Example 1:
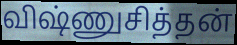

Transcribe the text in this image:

விஷ்ணுசித்தன்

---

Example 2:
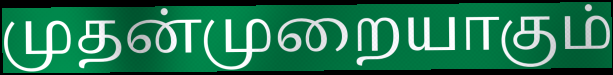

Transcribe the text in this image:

முதன்முறையாகும்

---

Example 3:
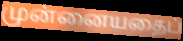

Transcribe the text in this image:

முன்னையதைப்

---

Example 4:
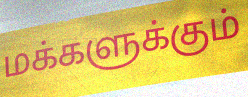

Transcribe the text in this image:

மக்களுக்கும்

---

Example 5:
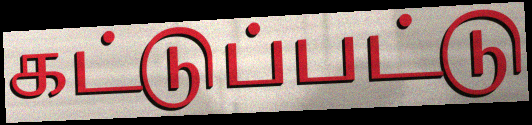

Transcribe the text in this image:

கட்டுப்பட்டு